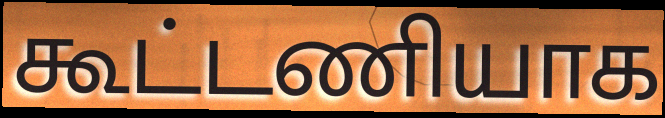
கூட்டணியாக